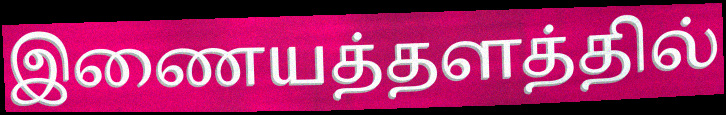
இணையத்தளத்தில்